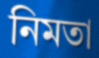
নিমতা